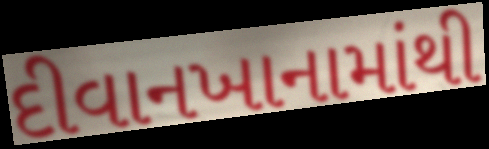
દીવાનખાનામાંથી